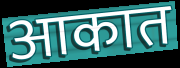
आकात